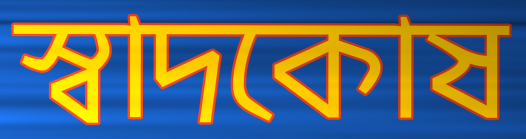
স্বাদকোষ